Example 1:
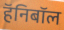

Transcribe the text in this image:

हॅनिबॉल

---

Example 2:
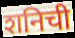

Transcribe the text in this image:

शनिची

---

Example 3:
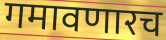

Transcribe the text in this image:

गमावणारच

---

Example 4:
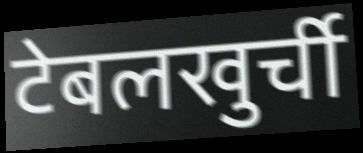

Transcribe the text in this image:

टेबलखुर्ची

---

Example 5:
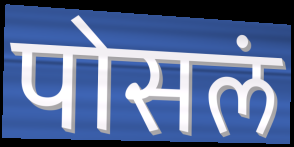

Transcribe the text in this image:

पोसलं